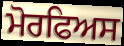
ਮੋਰਫਿਅਸ